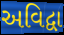
અવિદ્વા